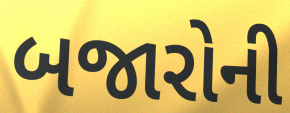
બજારોની